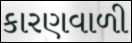
કારણવાળી